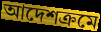
আদেশক্রমে